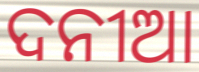
ଦନୀଆ